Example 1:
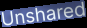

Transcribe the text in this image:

Unshared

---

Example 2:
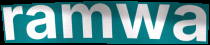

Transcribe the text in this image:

ramwa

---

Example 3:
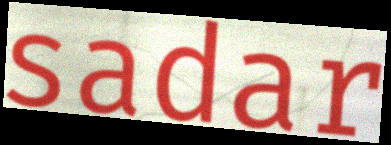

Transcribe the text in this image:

sadar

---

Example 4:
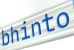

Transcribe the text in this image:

bhinto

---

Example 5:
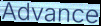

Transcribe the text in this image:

Advance